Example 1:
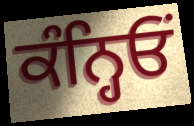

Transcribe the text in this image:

ਕੰਨ੍ਹਿਓਂ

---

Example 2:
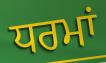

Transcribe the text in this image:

ਧਰਮਾਂ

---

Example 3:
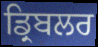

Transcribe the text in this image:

ਡ੍ਰਿਬਲਰ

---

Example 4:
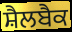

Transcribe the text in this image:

ਸ਼ੈਲਬੈਕ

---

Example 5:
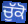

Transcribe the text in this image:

ਚੁੱਕੋ